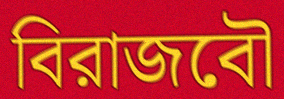
বিরাজবৌ